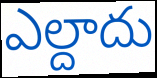
ఎల్దాదు